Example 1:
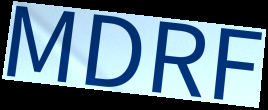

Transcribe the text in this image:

MDRF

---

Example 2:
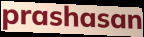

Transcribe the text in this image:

prashasan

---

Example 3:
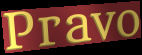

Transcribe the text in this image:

Pravo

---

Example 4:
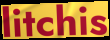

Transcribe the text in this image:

litchis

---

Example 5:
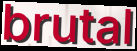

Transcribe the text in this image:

brutal